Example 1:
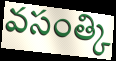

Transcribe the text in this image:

వసంత్కి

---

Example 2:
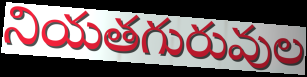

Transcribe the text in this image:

నియతగురువుల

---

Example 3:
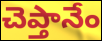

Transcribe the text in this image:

చెప్తానేం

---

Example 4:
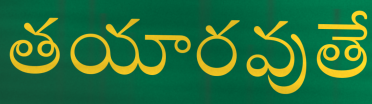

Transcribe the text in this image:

తయారవుతే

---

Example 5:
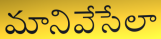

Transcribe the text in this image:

మానివేసేలా